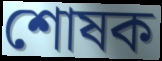
শোষক